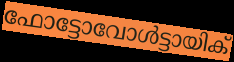
ഫോട്ടോവോൾട്ടായിക്